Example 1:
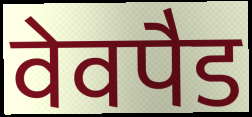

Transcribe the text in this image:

वेवपैड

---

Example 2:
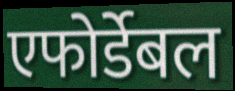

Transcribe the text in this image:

एफोर्डेबल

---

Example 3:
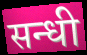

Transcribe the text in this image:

सन्धी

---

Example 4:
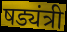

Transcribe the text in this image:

षड्यंत्री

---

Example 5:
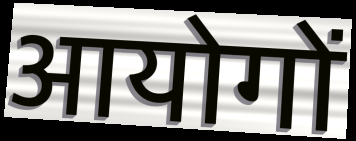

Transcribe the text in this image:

आयोगों